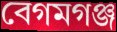
বেগমগঞ্জ